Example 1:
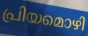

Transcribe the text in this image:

പ്രിയമൊഴി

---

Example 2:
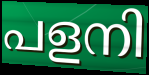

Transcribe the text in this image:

പളനി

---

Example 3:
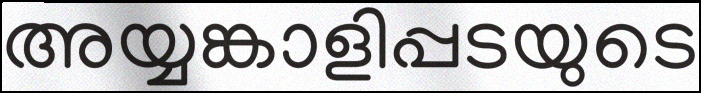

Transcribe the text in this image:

അയ്യങ്കാളിപ്പടയുടെ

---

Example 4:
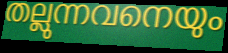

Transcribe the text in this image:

തല്ലുന്നവനെയും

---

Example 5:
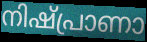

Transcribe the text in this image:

നിഷ്പ്രാണാ